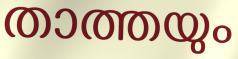
താത്തയും